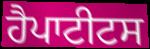
ਹੈਪਾਟੀਟਸ